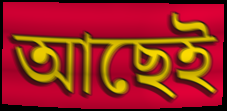
আছেই